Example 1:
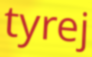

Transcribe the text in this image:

tyrej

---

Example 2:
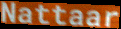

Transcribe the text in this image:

Nattaar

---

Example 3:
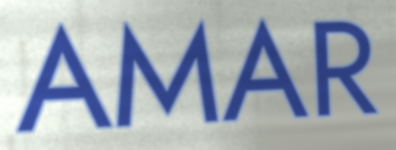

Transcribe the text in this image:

AMAR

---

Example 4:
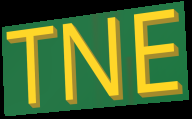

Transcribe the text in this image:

TNE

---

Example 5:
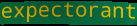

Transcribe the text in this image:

expectorant